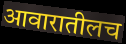
आवारातीलच